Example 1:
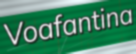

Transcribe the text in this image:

Voafantina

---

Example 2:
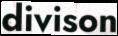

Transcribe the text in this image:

divison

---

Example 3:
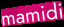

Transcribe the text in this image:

mamidi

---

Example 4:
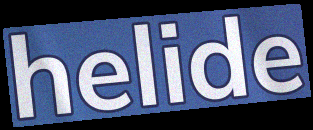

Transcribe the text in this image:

helide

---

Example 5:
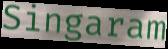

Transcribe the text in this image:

Singaram